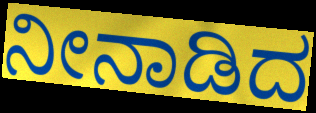
ನೀನಾಡಿದ